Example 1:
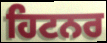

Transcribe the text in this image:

ਹਿਟਨਰ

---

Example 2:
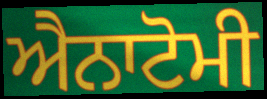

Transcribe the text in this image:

ਐਨਾਟੋਮੀ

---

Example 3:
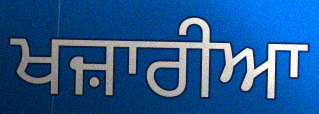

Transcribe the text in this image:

ਖਜ਼ਾਰੀਆ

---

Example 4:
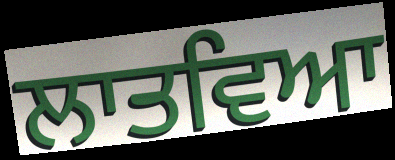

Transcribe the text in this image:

ਲਾਤਵਿਆ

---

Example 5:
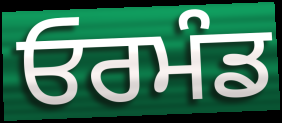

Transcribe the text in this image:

ਓਰਮੰਡ